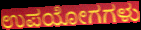
ಉಪಯೋಗಗಳು